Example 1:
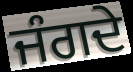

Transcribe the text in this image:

ਜੰਗਦੇ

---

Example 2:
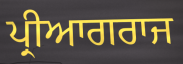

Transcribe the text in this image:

ਪ੍ਰੀਆਗਰਾਜ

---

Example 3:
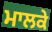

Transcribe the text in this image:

ਮਾਲਕੇ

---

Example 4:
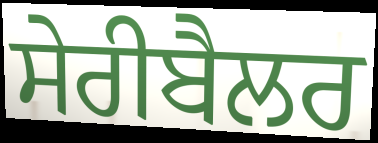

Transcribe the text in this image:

ਸੇਰੀਬੈਲਰ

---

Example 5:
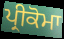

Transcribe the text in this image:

ਪ੍ਰੀਕੋਮਾ